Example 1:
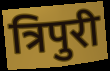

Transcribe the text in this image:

त्रिपुरी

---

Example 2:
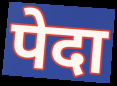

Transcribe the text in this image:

पेदा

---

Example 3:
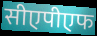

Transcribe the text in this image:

सीएपीएफ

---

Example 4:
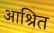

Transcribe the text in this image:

आश्रित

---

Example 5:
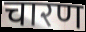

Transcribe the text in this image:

चारण